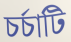
চর্চাটি